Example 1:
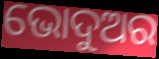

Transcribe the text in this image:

ଭୋଦୁଅର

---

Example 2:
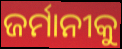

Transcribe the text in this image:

ଜର୍ମାନୀକୁ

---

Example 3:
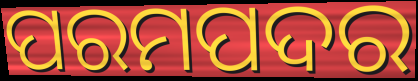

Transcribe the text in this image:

ପରମପଦର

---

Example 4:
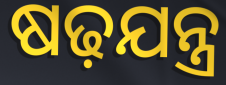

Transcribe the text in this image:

ଷଢ଼ଯନ୍ତ୍ର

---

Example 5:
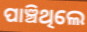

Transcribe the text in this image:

ପାଞ୍ଚିଥିଲେ